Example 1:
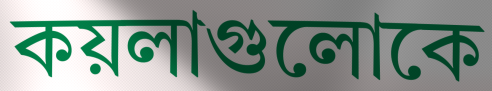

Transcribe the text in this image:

কয়লাগুলোকে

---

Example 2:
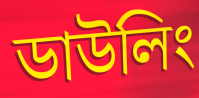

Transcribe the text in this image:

ডাউলিং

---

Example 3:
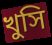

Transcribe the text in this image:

খুসি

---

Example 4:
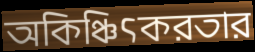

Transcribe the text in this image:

অকিঞ্চিৎকরতার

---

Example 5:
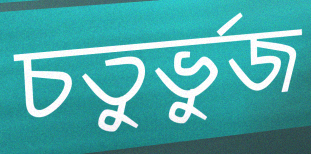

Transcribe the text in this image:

চতুর্ভুজ